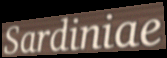
Sardiniae